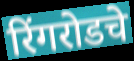
रिंगरोडचे